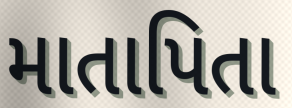
માતાપિતા